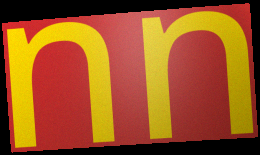
nn